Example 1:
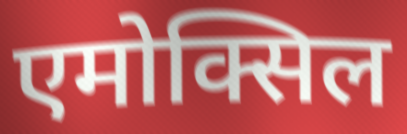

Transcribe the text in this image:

एमोक्सिल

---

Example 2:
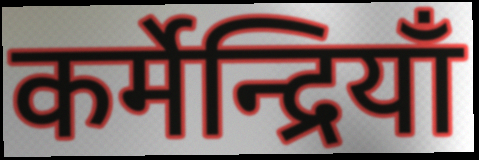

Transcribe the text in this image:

कर्मेन्द्रियाँ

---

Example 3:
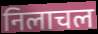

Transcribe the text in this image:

निलाचल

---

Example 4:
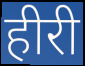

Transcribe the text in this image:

हीरी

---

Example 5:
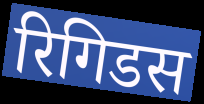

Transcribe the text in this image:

रिगिडस